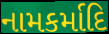
નામકર્માદિ